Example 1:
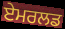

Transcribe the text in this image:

ਏਮਰਲਡ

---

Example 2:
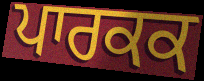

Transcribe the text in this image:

ਪਾਰਕਕ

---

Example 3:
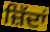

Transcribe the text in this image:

ਜ਼ਿੱਦਾਂ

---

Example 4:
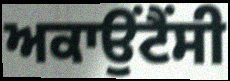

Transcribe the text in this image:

ਅਕਾਉਂਟੈਂਸੀ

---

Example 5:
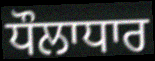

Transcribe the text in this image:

ਧੌਲਾਧਾਰ